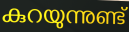
കുറയുന്നുണ്ട്